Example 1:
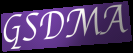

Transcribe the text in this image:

GSDMA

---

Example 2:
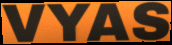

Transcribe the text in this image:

VYAS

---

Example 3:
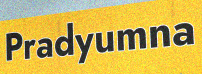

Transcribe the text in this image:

Pradyumna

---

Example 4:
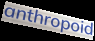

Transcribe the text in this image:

anthropoid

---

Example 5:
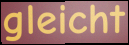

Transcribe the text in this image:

gleicht